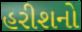
હરીશનો